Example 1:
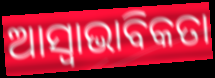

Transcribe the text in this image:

ଆସ୍ବାଭାବିକତା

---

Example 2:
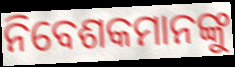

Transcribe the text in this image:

ନିବେଶକମାନଙ୍କୁ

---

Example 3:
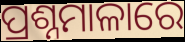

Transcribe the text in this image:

ପ୍ରଶ୍ନମାଳାରେ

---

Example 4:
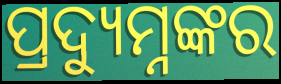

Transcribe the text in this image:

ପ୍ରଦ୍ୟୁମ୍ନଙ୍କର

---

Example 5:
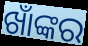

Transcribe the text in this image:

ଖାଁଙ୍କର